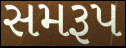
સમરૂપ